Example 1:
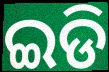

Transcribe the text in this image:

ଇଡି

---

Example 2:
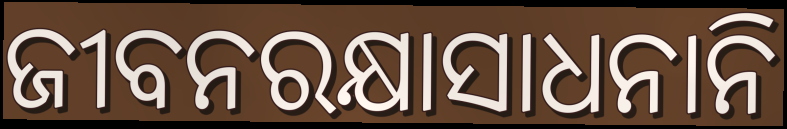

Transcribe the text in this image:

ଜୀବନରକ୍ଷାସାଧନାନି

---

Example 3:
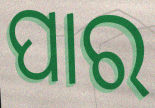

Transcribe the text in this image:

ପାର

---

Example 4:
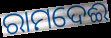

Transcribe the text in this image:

ରାମଦେଈ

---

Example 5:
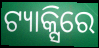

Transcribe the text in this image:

ଟ୍ୟାକ୍ସିରେ